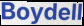
Boydell